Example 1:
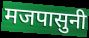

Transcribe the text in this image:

मजपासुनी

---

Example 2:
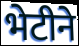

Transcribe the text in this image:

भेटीने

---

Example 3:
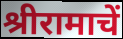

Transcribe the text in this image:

श्रीरामाचें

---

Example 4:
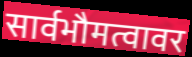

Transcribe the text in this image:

सार्वभौमत्वावर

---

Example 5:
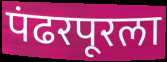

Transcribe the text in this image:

पंढरपूरला